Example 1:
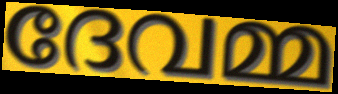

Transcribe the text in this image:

ദേവമ്മ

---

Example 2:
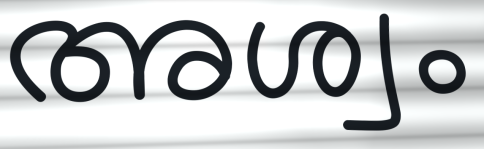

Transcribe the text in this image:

അശ്വം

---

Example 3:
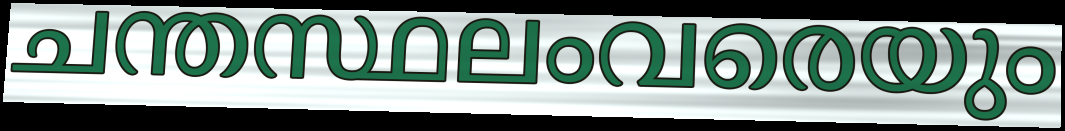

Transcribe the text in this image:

ചന്തസ്ഥലംവരെയും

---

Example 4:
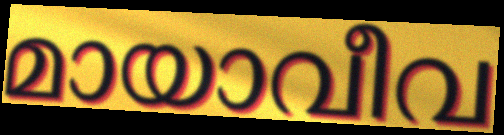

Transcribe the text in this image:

മായാവീവ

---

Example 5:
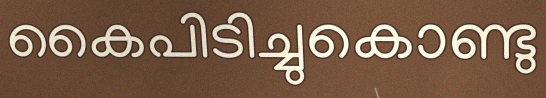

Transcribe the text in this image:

കൈപിടിച്ചുകൊണ്ടു